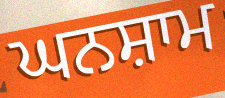
ਘਨਸ਼ਾਮ